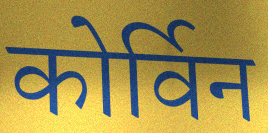
कोर्विन